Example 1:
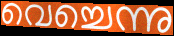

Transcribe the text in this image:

വെച്ചെന്നു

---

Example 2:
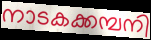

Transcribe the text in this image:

നാടകക്കമ്പനി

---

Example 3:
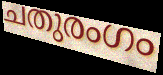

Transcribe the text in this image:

ചതുരംഗം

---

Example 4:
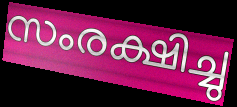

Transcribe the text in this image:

സംരക്ഷിച്ചു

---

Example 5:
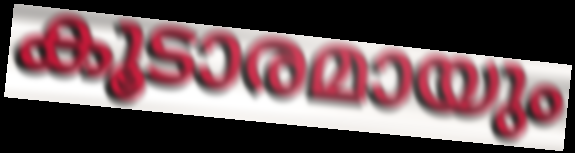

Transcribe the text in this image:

കൂടാരമായും